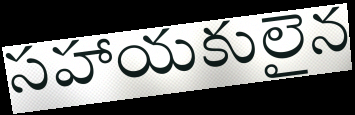
సహాయకులైన